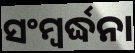
ସଂମ୍ବର୍ଦ୍ଧନା